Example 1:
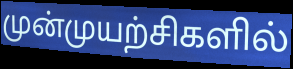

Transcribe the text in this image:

முன்முயற்சிகளில்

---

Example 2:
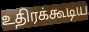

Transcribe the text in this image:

உதிரக்கூடிய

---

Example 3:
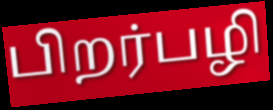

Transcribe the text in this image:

பிறர்பழி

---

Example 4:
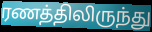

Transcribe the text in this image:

ரணத்திலிருந்து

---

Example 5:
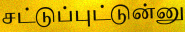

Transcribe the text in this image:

சட்டுப்புட்டுன்னு